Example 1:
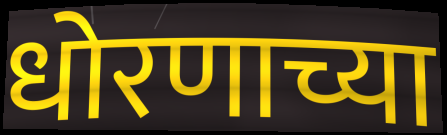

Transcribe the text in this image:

धोरणाच्या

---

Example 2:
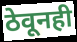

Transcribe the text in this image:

ठेवूनही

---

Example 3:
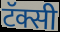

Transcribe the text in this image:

टॅक्सी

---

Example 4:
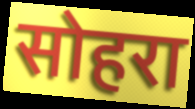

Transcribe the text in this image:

सोहरा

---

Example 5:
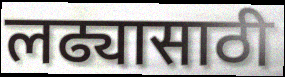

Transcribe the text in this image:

लढ्यासाठी